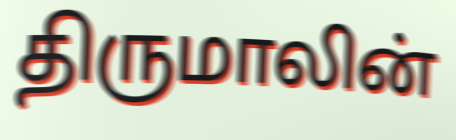
திருமாலின்